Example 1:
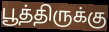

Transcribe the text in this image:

பூத்திருக்கு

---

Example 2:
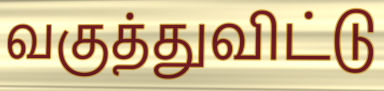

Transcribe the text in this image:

வகுத்துவிட்டு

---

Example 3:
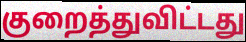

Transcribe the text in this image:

குறைத்துவிட்டது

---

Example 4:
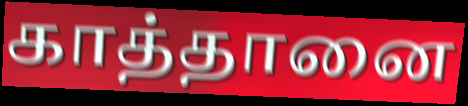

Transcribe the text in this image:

காத்தானை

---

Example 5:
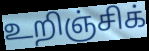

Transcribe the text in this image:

உறிஞ்சிக்